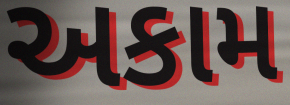
અકામ